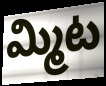
మ్మిట